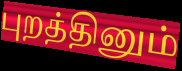
புறத்தினும்